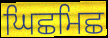
ਘਿਛਮਿਛ